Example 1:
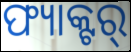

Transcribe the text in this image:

ଫ୍ୟାକ୍ଟର୍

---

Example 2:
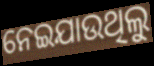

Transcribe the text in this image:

ନେଇଯାଉଥିଲୁ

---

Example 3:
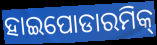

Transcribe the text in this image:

ହାଇପୋଡାରମିକ୍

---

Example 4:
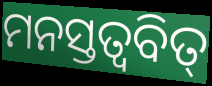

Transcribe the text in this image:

ମନସ୍ତତ୍ୱବିତ୍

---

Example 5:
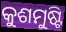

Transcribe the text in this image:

କୁଶମୁଷ୍ଟି